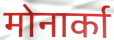
मोनार्का